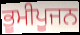
ਭੂਮੀਪੂਜਨ